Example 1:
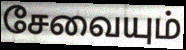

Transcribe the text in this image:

சேவையும்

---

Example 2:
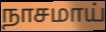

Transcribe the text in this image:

நாசமாய்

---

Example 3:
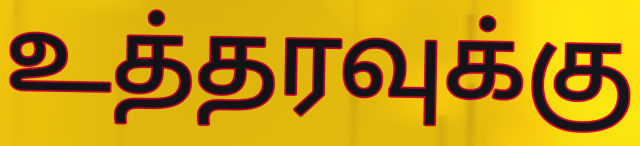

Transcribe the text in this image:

உத்தரவுக்கு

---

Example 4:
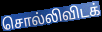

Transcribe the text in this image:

சொல்லிவிடக்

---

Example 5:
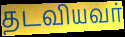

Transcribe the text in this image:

தடவியவர்